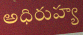
అధిరుహ్య